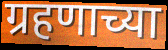
ग्रहणाच्या